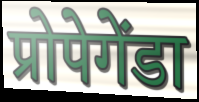
प्रोपेगेंडा